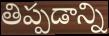
తిప్పడాన్ని